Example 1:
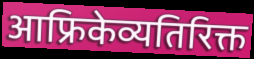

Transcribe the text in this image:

आफ्रिकेव्यतिरिक्त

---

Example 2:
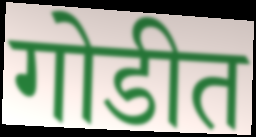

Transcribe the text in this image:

गोडीत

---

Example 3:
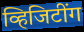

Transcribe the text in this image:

व्हिजिटींग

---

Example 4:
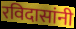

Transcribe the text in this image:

रविदासांनी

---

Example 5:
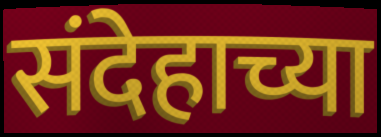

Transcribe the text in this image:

संदेहाच्या